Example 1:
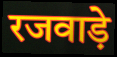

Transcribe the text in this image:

रजवाड़े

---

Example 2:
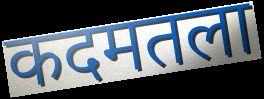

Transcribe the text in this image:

कदमतला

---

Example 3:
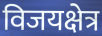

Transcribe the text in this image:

विजयक्षेत्र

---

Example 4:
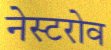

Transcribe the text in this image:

नेस्टरोव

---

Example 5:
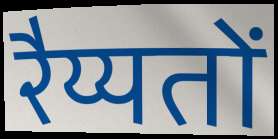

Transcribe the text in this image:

रैय्यतों